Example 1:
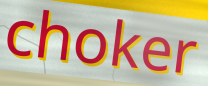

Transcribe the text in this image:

choker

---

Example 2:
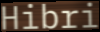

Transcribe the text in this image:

Hibri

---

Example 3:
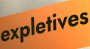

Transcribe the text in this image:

expletives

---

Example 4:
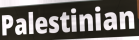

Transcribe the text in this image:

Palestinian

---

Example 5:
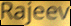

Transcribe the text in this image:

Rajeev